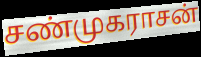
சண்முகராசன்